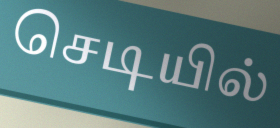
செடியில்